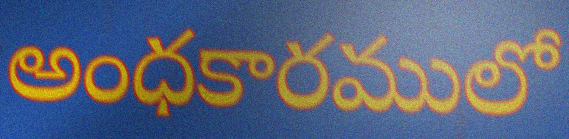
అంధకారములో